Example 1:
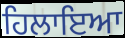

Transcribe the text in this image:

ਹਿਲਾਇਆ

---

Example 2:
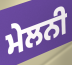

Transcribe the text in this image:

ਮੇਲਨੀ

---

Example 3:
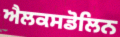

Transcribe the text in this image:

ਐਲਕਸਡੋਲਿਨ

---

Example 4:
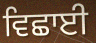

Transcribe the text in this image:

ਵਿਛਾਈ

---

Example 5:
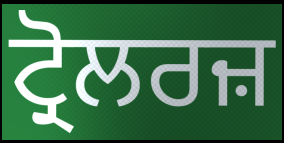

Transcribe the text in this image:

ਟ੍ਰੋਲਰਜ਼